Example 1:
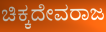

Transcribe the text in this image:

ಚಿಕ್ಕದೇವರಾಜ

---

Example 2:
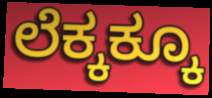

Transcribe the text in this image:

ಲೆಕ್ಕಕ್ಕೂ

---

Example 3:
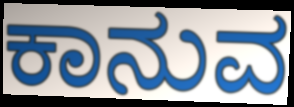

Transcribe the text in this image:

ಕಾನುವ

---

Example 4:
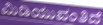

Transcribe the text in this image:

ಮಿಡಿಯುವಂತಿದೆ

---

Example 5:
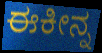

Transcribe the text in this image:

ಈಕೀನ್ನ